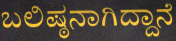
ಬಲಿಷ್ಠನಾಗಿದ್ದಾನೆ